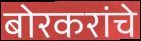
बोरकरांचे